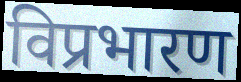
विप्रभारण